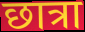
छात्रा